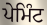
ਪੇਮਿੰਟ